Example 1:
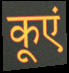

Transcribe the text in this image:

कूएं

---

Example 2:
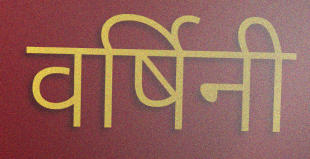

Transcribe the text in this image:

वर्षिनी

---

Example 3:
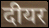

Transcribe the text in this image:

दीयर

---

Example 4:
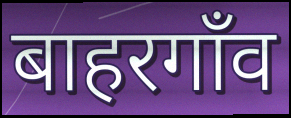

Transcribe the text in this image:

बाहरगाँव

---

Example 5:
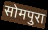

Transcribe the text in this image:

सोमपुरा